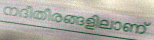
നദീതീരങ്ങളിലാണ്